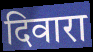
दिवारा